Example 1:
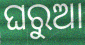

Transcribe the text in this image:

ଘରୁଆ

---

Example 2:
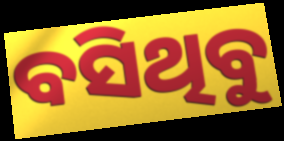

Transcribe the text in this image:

ବସିଥିବୁ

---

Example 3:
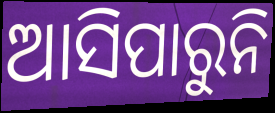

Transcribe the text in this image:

ଆସିପାରୁନି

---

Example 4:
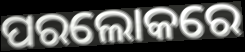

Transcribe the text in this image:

ପରଲୋକରେ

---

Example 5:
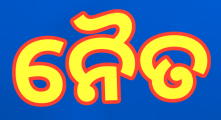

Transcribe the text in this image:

ନୈତ